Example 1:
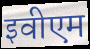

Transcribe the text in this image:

इवीएम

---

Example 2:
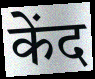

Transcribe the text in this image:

केंद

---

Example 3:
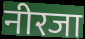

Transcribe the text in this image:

नीरजा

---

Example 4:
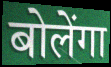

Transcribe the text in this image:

बोलेंगा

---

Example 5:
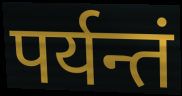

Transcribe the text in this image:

पर्यन्तं